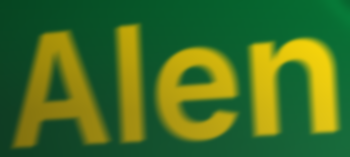
Alen